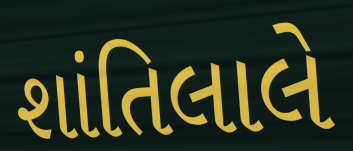
શાંતિલાલે